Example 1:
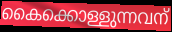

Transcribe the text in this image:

കൈക്കൊള്ളുന്നവന്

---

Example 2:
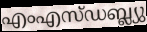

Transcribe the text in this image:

എംഎസ്ഡബ്ല്യു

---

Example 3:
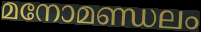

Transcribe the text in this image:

മനോമണ്ഡലം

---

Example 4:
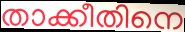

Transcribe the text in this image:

താക്കീതിനെ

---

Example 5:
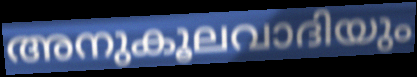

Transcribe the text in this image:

അനുകൂലവാദിയും